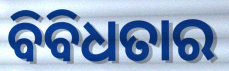
ବିବିଧତାର